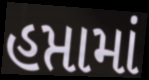
હપ્તામાં